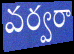
వర్వరా